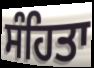
ਸੰਹਿਤਾ